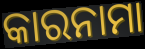
କାରନାମା